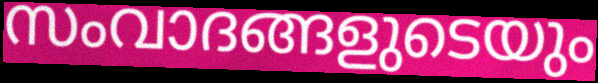
സംവാദങ്ങളുടെയും